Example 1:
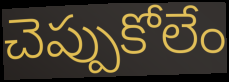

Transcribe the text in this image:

చెప్పుకోలేం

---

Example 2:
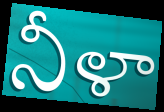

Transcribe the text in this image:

నీళా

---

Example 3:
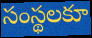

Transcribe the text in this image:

సంస్థలకూ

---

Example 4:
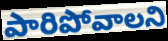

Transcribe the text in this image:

పారిపోవాలని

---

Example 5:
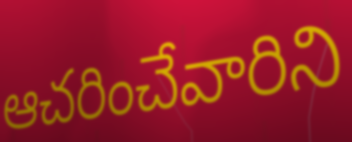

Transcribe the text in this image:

ఆచరించేవారిని